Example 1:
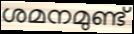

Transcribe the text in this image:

ശമനമുണ്ട്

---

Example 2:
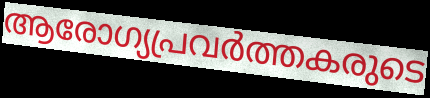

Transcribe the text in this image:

ആരോഗ്യപ്രവർത്തകരുടെ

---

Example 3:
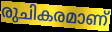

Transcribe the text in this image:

രുചികരമാണ്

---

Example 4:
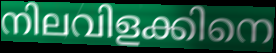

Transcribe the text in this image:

നിലവിളക്കിനെ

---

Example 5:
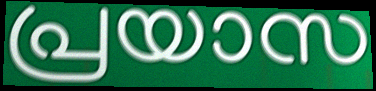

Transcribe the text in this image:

പ്രയാസ